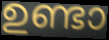
ഉണ്ടാ